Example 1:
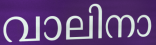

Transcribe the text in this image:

വാലിനാ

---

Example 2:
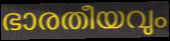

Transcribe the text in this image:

ഭാരതീയവും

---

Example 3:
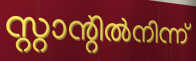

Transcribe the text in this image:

സ്റ്റാന്റിൽനിന്ന്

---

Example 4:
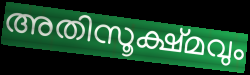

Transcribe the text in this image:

അതിസൂക്ഷ്മവും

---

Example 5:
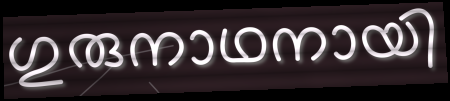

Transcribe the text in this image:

ഗുരുനാഥനായി